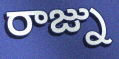
రాజ్ను